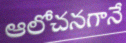
ఆలోచనగానే